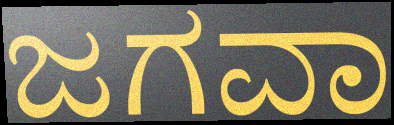
ಜಗವಾ